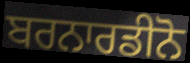
ਬਰਨਾਰਡੀਨੋ